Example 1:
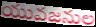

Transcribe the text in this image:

యువజనుల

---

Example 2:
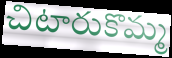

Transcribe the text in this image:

చిటారుకొమ్మ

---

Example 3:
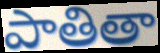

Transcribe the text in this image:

పాతితా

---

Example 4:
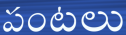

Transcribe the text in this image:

పంటలు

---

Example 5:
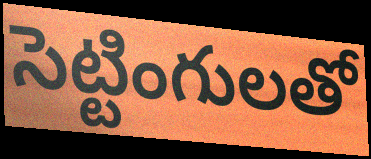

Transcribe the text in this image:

సెట్టింగులతో